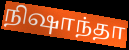
நிஷாந்தா